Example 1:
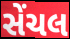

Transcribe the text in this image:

સેંચલ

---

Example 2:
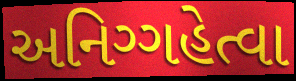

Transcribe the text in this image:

અનિગ્ગહેત્વા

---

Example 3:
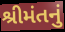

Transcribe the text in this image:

શ્રીમંતનું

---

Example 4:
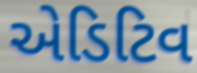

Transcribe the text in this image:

એડિટિવ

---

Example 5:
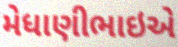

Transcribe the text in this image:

મેધાણીભાઇએ